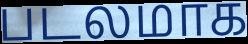
படலமாக